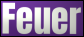
Feuer